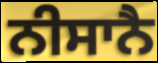
ਨੀਸਾਨੈ